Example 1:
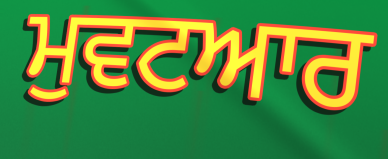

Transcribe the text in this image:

ਮੁਵਟਆਰ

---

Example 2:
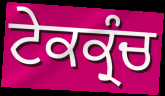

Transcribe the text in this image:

ਟੇਕਕ੍ਰੰਚ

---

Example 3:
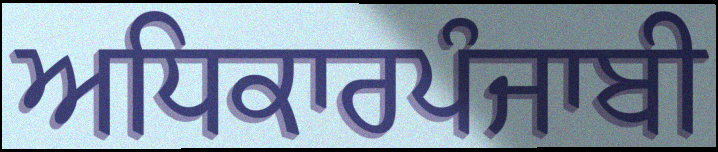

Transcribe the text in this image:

ਅਧਿਕਾਰਪੰਜਾਬੀ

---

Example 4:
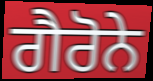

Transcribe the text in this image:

ਗੈਰੋਨੇ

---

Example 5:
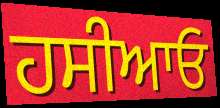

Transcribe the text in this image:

ਹਸੀਆਓ